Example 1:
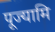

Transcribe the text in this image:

पूज्यामि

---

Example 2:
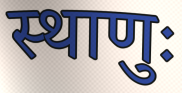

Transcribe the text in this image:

स्थाणुः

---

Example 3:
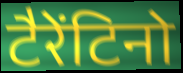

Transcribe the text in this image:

टैरेंटिनो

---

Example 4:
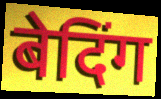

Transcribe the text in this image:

बेदिंग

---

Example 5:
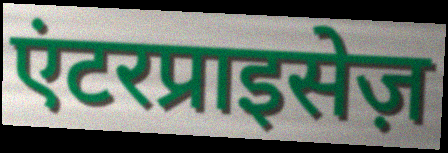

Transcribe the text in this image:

एंटरप्राइसेज़